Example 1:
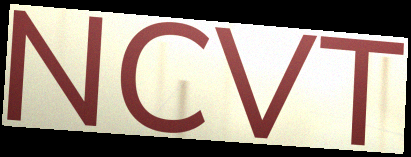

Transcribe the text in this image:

NCVT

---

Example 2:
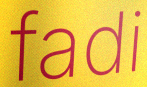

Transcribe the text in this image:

fadi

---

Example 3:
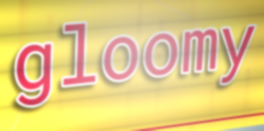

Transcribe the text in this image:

gloomy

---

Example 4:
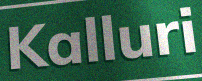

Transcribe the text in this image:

Kalluri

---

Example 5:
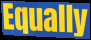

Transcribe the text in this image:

Equally